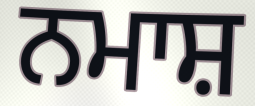
ਨਮਾਸ਼